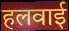
हलवाई